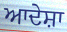
ਆਦੇਸ਼ਾ